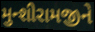
મુન્શીરામજીને